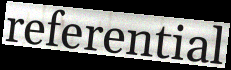
referential